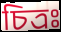
চিত্রঃ